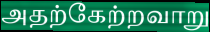
அதற்கேற்றவாறு